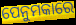
ପେନୁମକାରେ